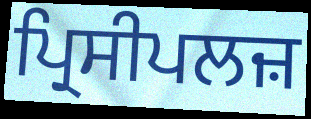
ਪ੍ਰਿਸੀਪਲਜ਼